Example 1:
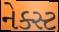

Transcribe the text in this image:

નેક્સ્ટ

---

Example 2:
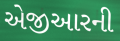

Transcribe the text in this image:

એજીઆરની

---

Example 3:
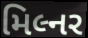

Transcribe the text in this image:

મિલ્નર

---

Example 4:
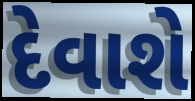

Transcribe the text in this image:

દેવાશે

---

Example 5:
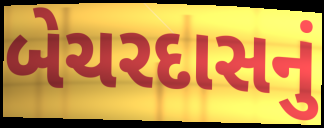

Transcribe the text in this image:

બેચરદાસનું